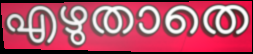
എഴുതാതെ